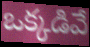
ఒక్కడివే